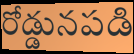
రోడ్డునపడి